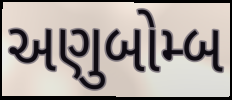
અણુબોમ્બ